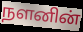
நளனின்